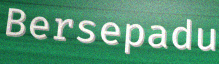
Bersepadu